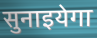
सुनाइयेगा